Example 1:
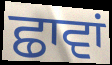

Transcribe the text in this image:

ਛਾਵਾਂ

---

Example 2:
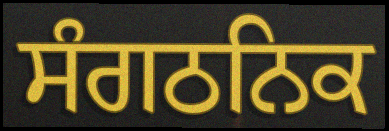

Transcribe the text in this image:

ਸੰਗਠਨਿਕ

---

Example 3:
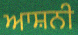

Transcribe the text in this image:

ਆਸ਼ਨੀ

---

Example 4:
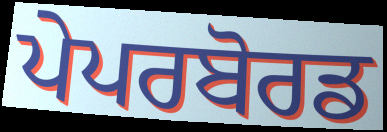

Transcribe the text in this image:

ਪੇਪਰਬੋਰਡ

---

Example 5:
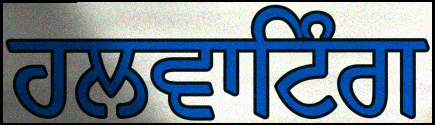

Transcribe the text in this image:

ਹਲਵਾਟਿੰਗ